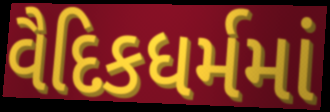
વૈદિકધર્મમાં